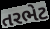
તરભેટ